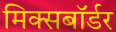
मिक्सबॉर्डर